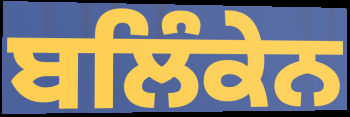
ਬਲਿੰਕੇਨ